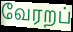
வேரறப்